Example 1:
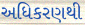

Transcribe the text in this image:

અધિકરણથી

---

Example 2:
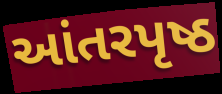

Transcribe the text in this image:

આંતરપૃષ્ઠ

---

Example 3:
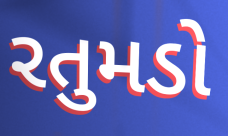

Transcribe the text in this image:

રતુમડો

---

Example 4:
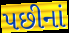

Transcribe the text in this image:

પછીનાં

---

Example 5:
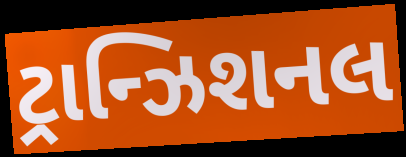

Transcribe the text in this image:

ટ્રાન્ઝિશનલ